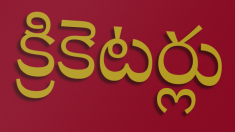
క్రికెటర్లు